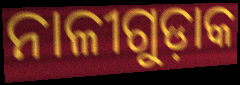
ନାଳୀଗୁଡ଼ାକ